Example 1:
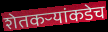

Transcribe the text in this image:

शेतकऱ्यांकडेच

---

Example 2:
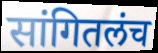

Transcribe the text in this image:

सांगितलंच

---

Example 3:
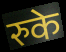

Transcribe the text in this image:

रुके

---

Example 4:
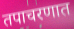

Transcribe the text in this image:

तपाचरणात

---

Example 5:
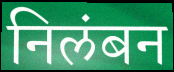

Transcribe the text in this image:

निलंबन